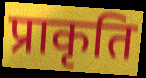
प्राकृति